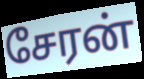
சேரன்